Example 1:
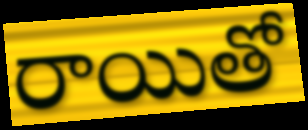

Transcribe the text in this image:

రాయితో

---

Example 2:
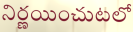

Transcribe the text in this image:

నిర్ణయించుటలో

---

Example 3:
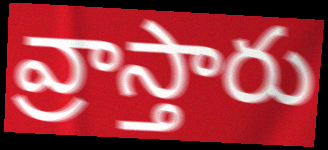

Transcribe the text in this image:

వ్రాస్తారు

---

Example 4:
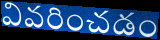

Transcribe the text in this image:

వివరించడం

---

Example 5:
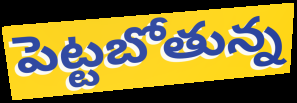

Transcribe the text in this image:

పెట్టబోతున్న